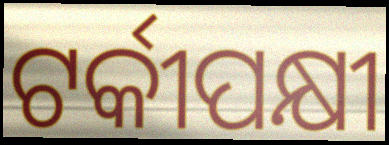
ଟର୍କୀପକ୍ଷୀ